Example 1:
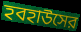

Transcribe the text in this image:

হবহাউসের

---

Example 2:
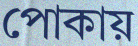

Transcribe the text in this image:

পোকায়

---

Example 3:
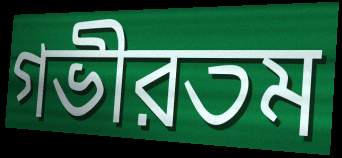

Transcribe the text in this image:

গভীরতম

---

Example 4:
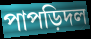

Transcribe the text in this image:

পাপড়িদল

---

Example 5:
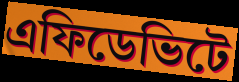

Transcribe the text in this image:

এফিডেভিটে